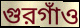
গুরগাঁও